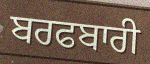
ਬਰਫਬਾਰੀ